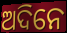
ଅଦିନେ